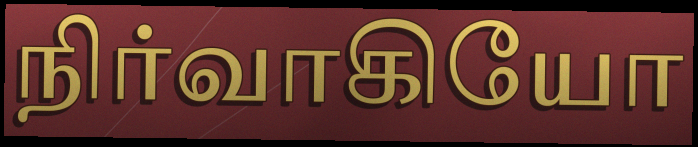
நிர்வாகியோ